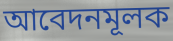
আবেদনমূলক